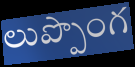
లుప్పొంగ